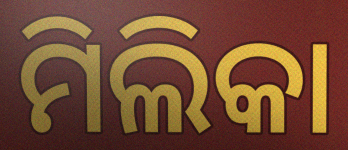
ମିଲିକା